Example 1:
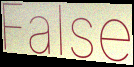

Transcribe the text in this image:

False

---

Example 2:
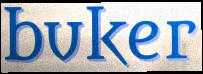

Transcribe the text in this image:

buker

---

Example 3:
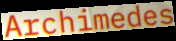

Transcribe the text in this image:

Archimedes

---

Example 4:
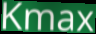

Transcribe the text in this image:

Kmax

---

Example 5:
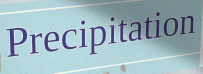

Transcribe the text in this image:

Precipitation